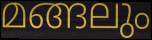
മങ്ങലും